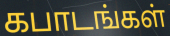
கபாடங்கள்